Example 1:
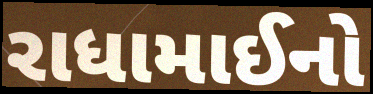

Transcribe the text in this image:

રાધામાઈનો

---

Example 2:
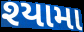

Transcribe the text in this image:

શ્યામા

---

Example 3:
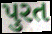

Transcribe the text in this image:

પુરત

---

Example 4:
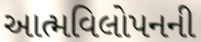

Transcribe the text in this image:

આત્મવિલોપનની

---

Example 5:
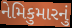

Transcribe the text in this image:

નેમિકુમારનું